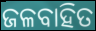
ଜଳବାହିତ